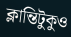
ক্লান্তিটুকুও